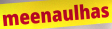
meenaulhas